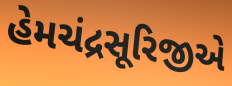
હેમચંદ્રસૂરિજીએ